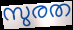
സുരത